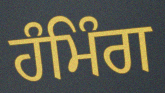
ਹੰਮਿੰਗ